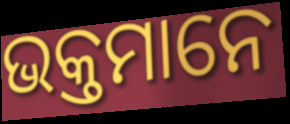
ଭକ୍ତମାନେ